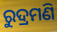
ରୁଦ୍ରମଣି